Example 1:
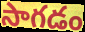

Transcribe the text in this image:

సాగడం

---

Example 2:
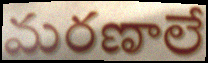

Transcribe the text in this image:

మరణాలే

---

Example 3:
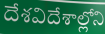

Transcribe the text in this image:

దేశవిదేశాల్లోని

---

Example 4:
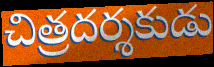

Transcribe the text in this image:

చిత్రదర్శకుడు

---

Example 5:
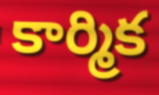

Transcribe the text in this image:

కార్మిక